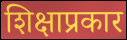
शिक्षाप्रकार